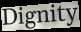
Dignity